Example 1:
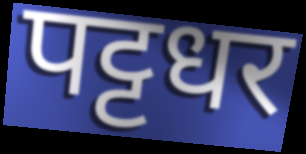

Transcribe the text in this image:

पट्टधर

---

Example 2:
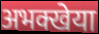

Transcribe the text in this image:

अभक्खेया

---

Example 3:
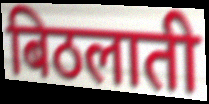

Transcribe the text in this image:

बिठलाती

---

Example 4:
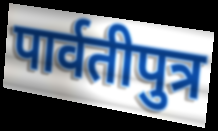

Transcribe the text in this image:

पार्वतीपुत्र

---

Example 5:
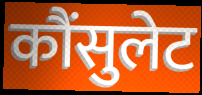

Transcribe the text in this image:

कौंसुलेट